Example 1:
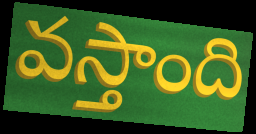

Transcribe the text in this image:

వస్తాంది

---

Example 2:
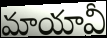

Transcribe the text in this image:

మాయావీ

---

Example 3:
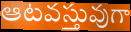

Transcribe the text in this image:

ఆటవస్తువుగా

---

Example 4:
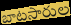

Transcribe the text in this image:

బాటసారుల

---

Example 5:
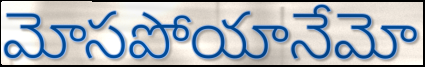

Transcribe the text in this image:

మోసపోయానేమో